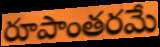
రూపాంతరమే